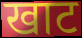
खाट